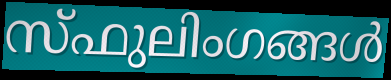
സ്ഫുലിംഗങ്ങൾ